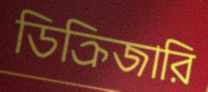
ডিক্রিজারি